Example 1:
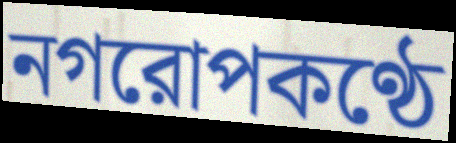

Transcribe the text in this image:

নগরোপকণ্ঠে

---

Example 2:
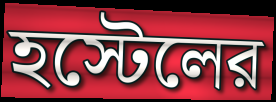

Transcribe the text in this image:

হস্টেলের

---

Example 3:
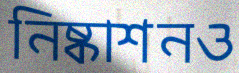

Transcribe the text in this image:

নিষ্কাশনও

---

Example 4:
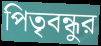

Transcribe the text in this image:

পিতৃবন্ধুর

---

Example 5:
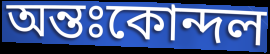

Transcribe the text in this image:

অন্তঃকোন্দল